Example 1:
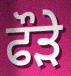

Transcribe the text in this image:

ਫੌੜੇ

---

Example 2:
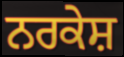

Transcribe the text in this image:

ਨਰਕੇਸ਼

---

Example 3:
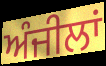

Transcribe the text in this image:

ਅੰਜੀਲਾਂ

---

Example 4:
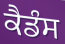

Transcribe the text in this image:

ਕੈਡੰਸ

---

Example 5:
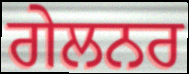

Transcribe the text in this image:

ਗੇਲਨਰ